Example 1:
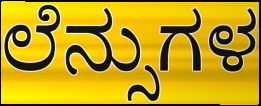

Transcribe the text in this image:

ಲೆನ್ಸುಗಳ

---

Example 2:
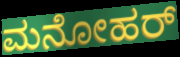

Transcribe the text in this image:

ಮನೋಹರ್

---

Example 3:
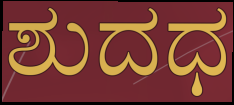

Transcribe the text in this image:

ಶುದಧ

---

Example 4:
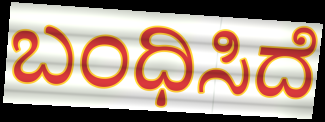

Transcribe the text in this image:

ಬಂಧಿಸಿದೆ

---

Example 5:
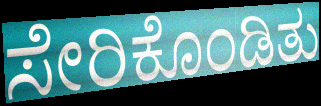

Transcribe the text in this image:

ಸೇರಿಕೊಂಡಿತು